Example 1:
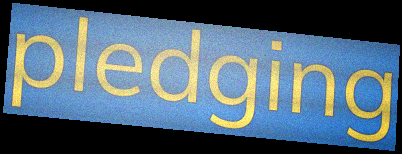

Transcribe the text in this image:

pledging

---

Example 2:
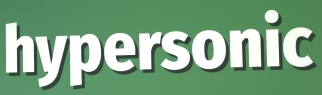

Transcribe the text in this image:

hypersonic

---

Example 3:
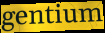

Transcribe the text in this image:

gentium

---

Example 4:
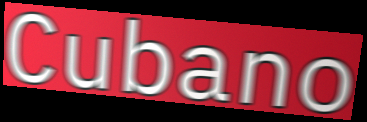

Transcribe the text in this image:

Cubano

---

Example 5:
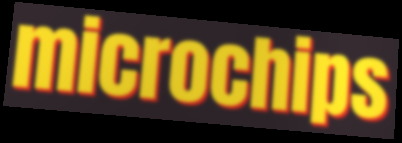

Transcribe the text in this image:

microchips